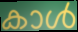
കാൾ